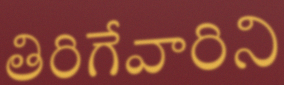
తిరిగేవారిని